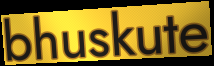
bhuskute